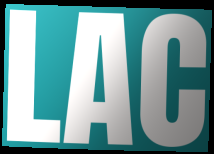
LAC